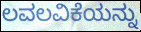
ಲವಲವಿಕೆಯನ್ನು